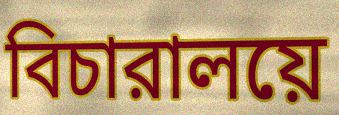
বিচারালয়ে